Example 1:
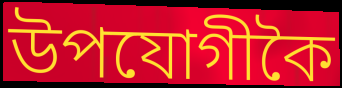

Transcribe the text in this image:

উপযোগীকৈ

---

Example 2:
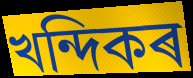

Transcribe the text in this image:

খন্দিকৰ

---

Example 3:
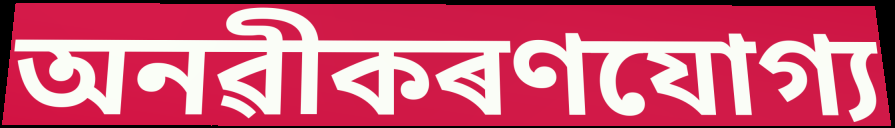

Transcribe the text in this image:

অনৱীকৰণযোগ্য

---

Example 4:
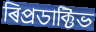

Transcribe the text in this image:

ৰিপ্ৰডাক্টিভ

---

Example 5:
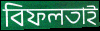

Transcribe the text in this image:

বিফলতাই